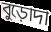
বুড়োদা